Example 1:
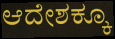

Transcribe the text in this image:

ಆದೇಶಕ್ಕೂ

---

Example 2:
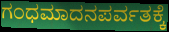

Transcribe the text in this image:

ಗಂಧಮಾದನಪರ್ವತಕ್ಕೆ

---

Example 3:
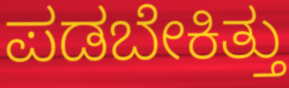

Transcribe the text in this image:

ಪಡಬೇಕಿತ್ತು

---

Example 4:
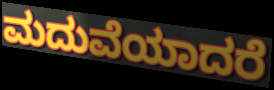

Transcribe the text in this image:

ಮದುವೆಯಾದರೆ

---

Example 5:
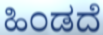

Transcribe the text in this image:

ಹಿಂಡದೆ